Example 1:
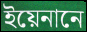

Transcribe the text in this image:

ইয়েনানে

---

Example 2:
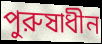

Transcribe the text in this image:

পুরুষাধীন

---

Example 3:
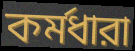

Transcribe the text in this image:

কর্মধারা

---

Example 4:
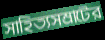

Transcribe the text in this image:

সাহিত্যসম্রাটের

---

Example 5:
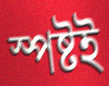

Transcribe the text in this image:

স্পষ্টই